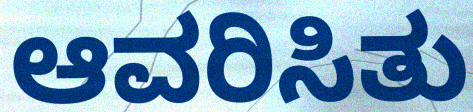
ಆವರಿಸಿತು